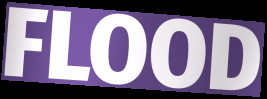
FLOOD